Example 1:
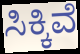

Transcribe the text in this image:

ಸಿಕ್ಕಿವೆ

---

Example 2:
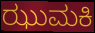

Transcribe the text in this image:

ಝುಮಕಿ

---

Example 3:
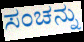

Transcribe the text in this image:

ಸಂಚನ್ನು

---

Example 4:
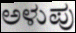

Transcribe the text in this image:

ಅಳುಪು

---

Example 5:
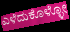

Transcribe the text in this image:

ಎಳೆದುಕೊಳ್ಳೋ